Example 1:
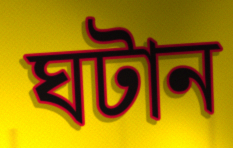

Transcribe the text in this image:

ঘটান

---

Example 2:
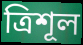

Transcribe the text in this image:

ত্রিশূল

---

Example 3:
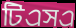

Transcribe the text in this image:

টিএসএ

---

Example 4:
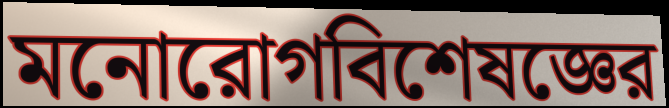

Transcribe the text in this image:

মনোরোগবিশেষজ্ঞের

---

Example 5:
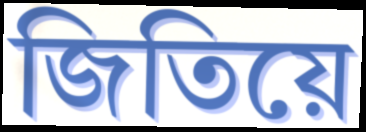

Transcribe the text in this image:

জিতিয়ে